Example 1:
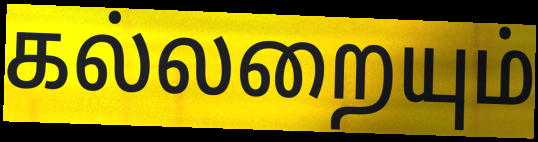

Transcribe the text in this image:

கல்லறையும்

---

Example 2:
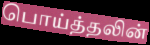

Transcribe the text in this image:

பொய்த்தலின்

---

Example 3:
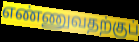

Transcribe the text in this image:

எண்ணுவதற்குப்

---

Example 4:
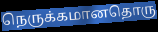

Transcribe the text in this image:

நெருக்கமானதொரு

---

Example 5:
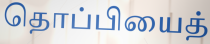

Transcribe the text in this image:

தொப்பியைத்